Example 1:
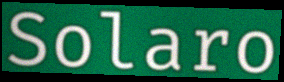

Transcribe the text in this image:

Solaro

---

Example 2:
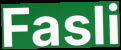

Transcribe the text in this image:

Fasli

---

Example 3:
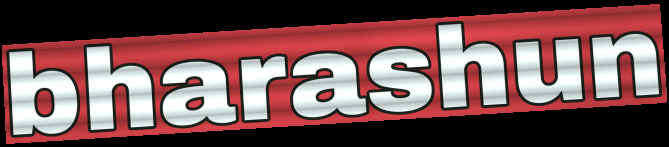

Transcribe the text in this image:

bharashun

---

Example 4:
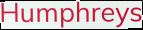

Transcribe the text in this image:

Humphreys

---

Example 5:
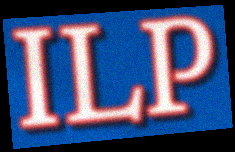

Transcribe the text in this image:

ILP